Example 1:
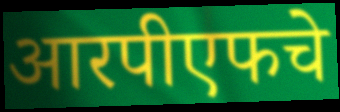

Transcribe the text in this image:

आरपीएफचे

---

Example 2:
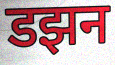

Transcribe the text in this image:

डझन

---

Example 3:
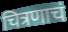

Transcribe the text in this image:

चित्रणाचं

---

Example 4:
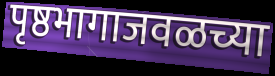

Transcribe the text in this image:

पृष्ठभागाजवळच्या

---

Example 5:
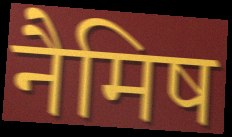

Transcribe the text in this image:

नैमिष